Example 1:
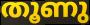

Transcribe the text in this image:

തൂണു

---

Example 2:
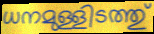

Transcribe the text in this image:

ധനമുള്ളിടത്തു്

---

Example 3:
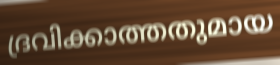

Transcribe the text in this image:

ദ്രവിക്കാത്തതുമായ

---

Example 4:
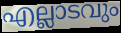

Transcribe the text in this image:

എല്ലാടവും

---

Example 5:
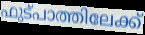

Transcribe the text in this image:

ഫുട്പാത്തിലേക്ക്